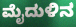
ಮೈದುಳಿನ